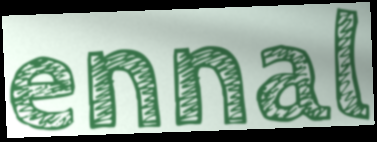
ennal